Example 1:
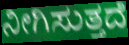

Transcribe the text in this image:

ನೀಗಿಸುತ್ತದೆ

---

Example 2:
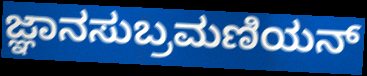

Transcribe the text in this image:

ಜ್ಞಾನಸುಬ್ರಮಣಿಯನ್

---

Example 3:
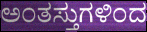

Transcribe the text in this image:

ಅಂತಸ್ತುಗಳಿಂದ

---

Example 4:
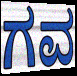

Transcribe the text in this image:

ಗವ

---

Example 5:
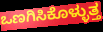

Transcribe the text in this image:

ಒಣಗಿಸಿಕೊಳ್ಳುತ್ತ